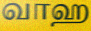
வாஹ